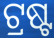
ଟ୍ରଷ୍ଟ